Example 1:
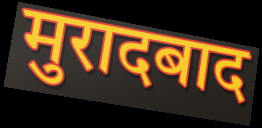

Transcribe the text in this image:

मुरादबाद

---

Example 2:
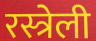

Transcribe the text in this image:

रस्त्रेली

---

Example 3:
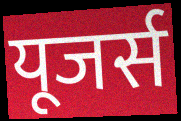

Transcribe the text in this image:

यूजर्स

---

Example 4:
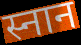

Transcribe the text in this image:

स्नान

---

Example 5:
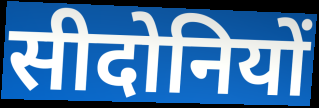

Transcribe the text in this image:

सीदोनियों